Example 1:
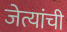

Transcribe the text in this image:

जेत्यांची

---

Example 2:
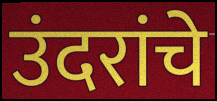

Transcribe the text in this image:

उंदरांचे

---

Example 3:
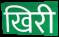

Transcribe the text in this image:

खिरी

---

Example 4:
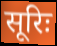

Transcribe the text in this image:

सूरिः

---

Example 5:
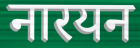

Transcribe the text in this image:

नारयन